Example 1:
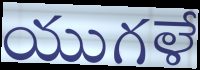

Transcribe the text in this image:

యుగళే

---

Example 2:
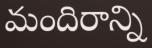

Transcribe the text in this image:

మందిరాన్ని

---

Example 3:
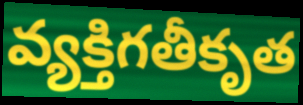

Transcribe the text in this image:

వ్యక్తిగతీకృత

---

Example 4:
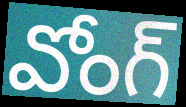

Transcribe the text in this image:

వోంగ్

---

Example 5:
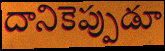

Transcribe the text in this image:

దానికెప్పుడూ